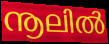
നൂലിൽ